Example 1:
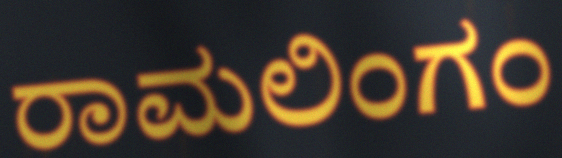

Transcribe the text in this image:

ರಾಮಲಿಂಗಂ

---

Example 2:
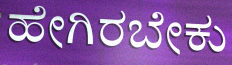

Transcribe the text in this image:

ಹೇಗಿರಬೇಕು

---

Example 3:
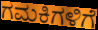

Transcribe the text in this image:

ಗಮಕಿಗಳಿಗೆ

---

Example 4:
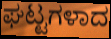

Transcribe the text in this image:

ಘಟ್ಟಗಳಾದ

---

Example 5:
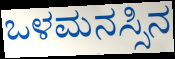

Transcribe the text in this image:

ಒಳಮನಸ್ಸಿನ